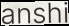
anshi